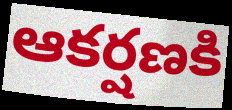
ఆకర్షణకి